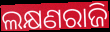
ଲକ୍ଷଣରାଜି